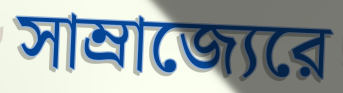
সাম্রাজ্যেরে